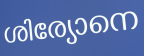
ശിര്യോനെ